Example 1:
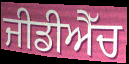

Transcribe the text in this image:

ਜੀਡੀਐੱਚ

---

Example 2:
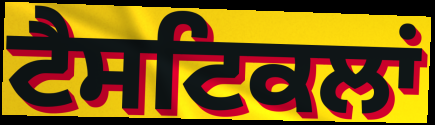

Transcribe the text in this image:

ਟੈਸਟਿਕਲਾਂ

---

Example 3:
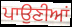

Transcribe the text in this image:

ਪਾਉਣੀਆਂ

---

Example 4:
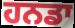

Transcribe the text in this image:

ਹਨਡਾ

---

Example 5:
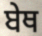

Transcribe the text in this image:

ਬੇਥ